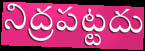
నిద్రపట్టదు